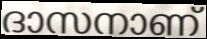
ദാസനാണ്